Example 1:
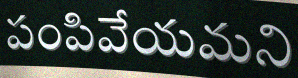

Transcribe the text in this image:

పంపివేయమని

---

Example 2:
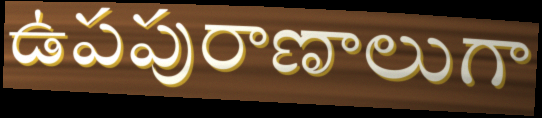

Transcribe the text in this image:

ఉపపురాణాలుగా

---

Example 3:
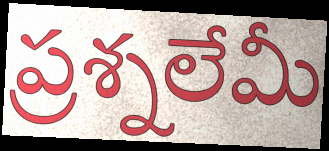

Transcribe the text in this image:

ప్రశ్నలేమీ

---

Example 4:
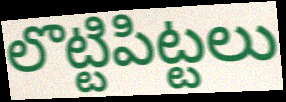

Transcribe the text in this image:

లొట్టిపిట్టలు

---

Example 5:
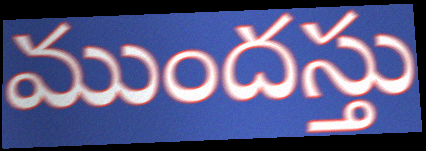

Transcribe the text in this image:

ముందస్తు